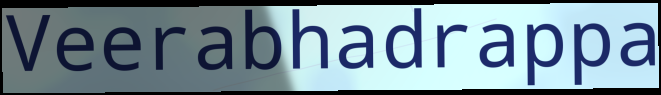
Veerabhadrappa